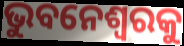
ଭୁବନେଶ୍ୱରକୁ